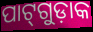
ପାଟ୍‌ଗୁଡ଼ାକ